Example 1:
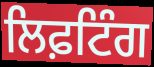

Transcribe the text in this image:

ਲਿਫ਼ਟਿੰਗ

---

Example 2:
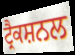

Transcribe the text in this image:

ਟ੍ਰੈਕਸ਼ਨਲ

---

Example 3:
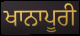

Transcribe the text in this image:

ਖਾਨਾਪੂਰੀ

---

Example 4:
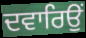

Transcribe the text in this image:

ਦਵਾਰਿਉਂ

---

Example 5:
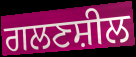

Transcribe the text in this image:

ਗਲਣਸ਼ੀਲ